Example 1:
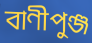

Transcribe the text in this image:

বাণীপুঞ্জ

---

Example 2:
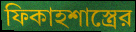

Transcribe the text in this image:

ফিকাহশাস্ত্রের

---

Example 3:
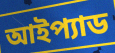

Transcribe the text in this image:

আইপ্যাড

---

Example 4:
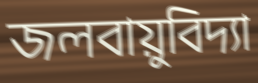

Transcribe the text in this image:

জলবায়ুবিদ্যা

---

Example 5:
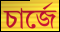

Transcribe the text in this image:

চার্জে